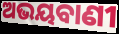
ଅଭୟବାଣୀ